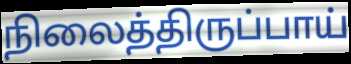
நிலைத்திருப்பாய்